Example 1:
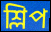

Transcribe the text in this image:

শ্লিপ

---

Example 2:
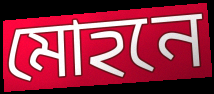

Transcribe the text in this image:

মোহনে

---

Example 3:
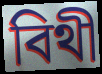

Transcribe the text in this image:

বিথী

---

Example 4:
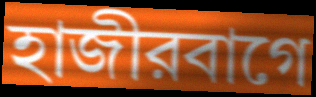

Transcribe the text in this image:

হাজীরবাগে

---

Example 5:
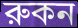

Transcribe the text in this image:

রুকন